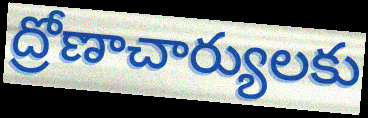
ద్రోణాచార్యులకు